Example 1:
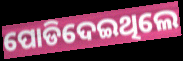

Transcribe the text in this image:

ପୋଡିଦେଇଥିଲେ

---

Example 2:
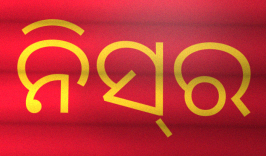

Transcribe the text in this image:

ନିସ୍‌ର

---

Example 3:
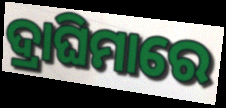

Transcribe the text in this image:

ଦ୍ରାଘିମାରେ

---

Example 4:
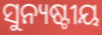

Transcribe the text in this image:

ସୁନ୍ୟଷ୍ଟୀୟ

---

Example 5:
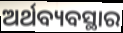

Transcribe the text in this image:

ଅର୍ଥବ୍ୟବସ୍ଥାର